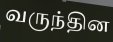
வருந்தின